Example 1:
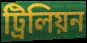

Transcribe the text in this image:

ট্ৰিলিয়ন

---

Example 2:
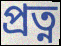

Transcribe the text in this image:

প্ৰত্ন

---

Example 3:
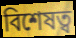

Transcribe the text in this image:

বিশেষত্ব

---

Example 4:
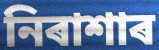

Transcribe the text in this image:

নিৰাশাৰ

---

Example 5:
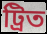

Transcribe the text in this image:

ট্ৰিত